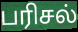
பரிசல்